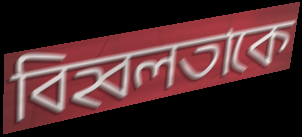
বিহ্বলতাকে